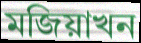
মজিয়াখন